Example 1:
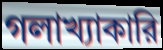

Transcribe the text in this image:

গলাখ্যাকারি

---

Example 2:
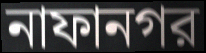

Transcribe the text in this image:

নাফানগর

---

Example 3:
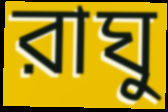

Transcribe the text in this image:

রাঘু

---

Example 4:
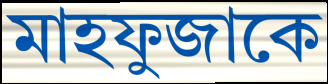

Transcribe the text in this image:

মাহফুজাকে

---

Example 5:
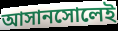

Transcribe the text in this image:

আসানসোলেই